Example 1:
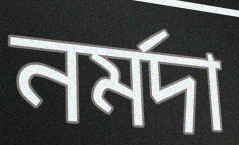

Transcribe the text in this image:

নর্মদা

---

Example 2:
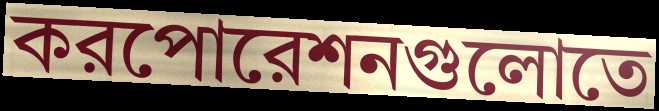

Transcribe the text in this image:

করপোরেশনগুলোতে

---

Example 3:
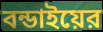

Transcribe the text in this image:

বন্ডাইয়ের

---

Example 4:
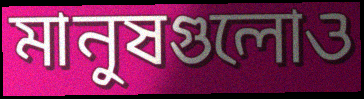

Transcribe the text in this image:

মানুষগুলোও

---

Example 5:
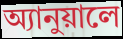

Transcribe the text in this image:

অ্যানুয়ালে